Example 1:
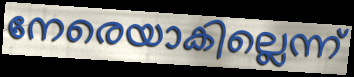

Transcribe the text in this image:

നേരെയാകില്ലെന്ന്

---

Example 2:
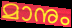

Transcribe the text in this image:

മാനും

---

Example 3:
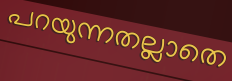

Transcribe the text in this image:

പറയുന്നതല്ലാതെ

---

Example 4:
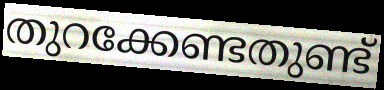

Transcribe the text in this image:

തുറക്കേണ്ടതുണ്ട്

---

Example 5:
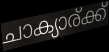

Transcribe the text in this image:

ചാക്യാര്ക്ക്